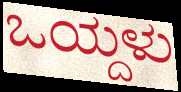
ಒಯ್ದಳು